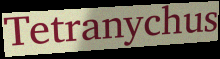
Tetranychus